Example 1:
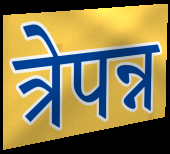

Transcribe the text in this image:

त्रेपन्न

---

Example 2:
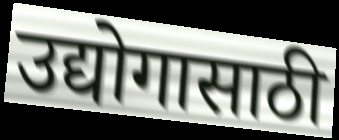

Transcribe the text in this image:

उद्योगासाठी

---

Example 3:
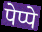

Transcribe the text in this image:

पेप्पे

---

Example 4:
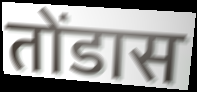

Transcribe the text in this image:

तोंडास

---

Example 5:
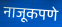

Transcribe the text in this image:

नाजूकपणे